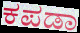
ಕಪಡಾ